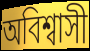
অবিশ্বাসী